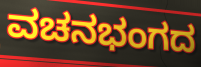
ವಚನಭಂಗದ